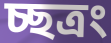
চ্ছত্রং